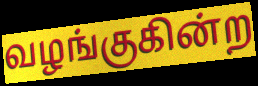
வழங்குகின்ற